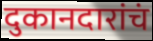
दुकानदारांचं